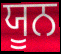
ਯੂਨ